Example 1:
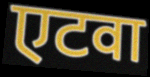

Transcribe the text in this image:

एटवा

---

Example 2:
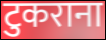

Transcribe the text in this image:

टुकराना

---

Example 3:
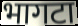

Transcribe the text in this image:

भागटा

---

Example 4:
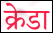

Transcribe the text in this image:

क्रेडा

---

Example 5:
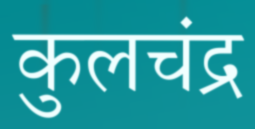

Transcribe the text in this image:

कुलचंद्र